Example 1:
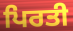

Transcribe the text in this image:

ਪਿਰਤੀ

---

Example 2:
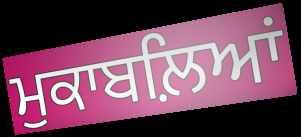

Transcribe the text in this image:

ਮੁਕਾਬਲ਼ਿਆਂ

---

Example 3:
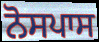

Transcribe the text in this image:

ਨੋਸਪਾਸ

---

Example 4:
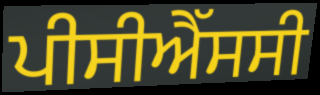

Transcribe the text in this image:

ਪੀਸੀਐੱਸਸੀ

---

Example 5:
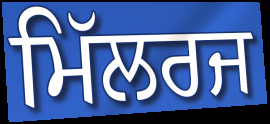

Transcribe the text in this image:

ਮਿੱਲਰਜ